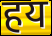
हय